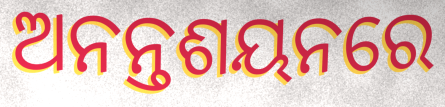
ଅନନ୍ତଶୟନରେ